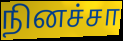
நினச்சா